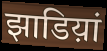
झाडिय़ां